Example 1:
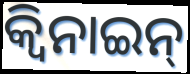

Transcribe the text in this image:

କ୍ୱିନାଇନ୍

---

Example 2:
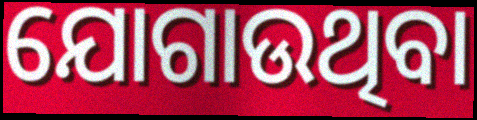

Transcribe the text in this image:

ଯୋଗାଉଥିବା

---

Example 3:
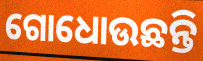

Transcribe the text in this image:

ଗୋଧୋଉଛନ୍ତି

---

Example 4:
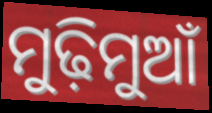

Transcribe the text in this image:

ମୁଢ଼ିମୁଆଁ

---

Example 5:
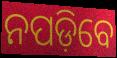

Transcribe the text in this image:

ନପଡ଼ିବେ